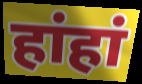
हांहां